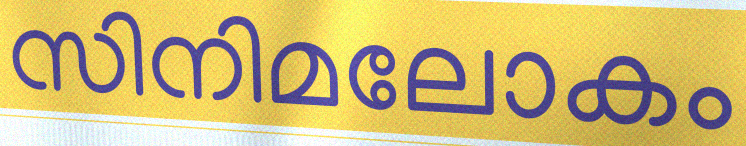
സിനിമലോകം